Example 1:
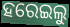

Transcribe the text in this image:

ହରେଇଲୁ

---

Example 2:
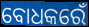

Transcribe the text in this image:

ବୋଧକରେଁ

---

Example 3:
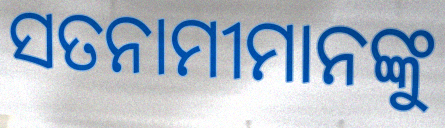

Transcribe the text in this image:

ସତନାମୀମାନଙ୍କୁ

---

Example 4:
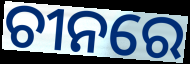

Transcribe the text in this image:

ଚୀନରେ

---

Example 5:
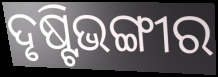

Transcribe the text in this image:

ଦୃଷ୍ଟିଭଙ୍ଗୀର